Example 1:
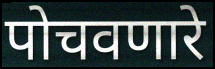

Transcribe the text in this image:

पोचवणारे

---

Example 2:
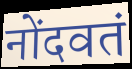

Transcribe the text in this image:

नोंदवतं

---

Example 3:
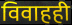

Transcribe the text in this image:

विवाहही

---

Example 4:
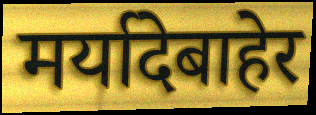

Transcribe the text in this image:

मर्यादेबाहेर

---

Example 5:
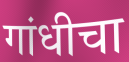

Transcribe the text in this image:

गांधीचा